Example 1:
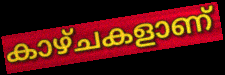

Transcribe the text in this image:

കാഴ്ചകളാണ്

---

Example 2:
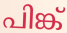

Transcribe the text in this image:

പിങ്ക്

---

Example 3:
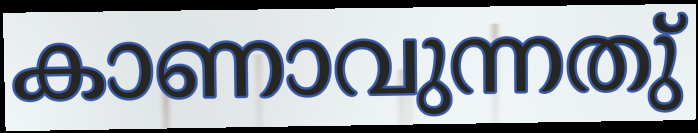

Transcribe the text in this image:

കാണാവുന്നതു്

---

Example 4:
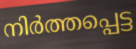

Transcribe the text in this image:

നിർത്തപ്പെട്ട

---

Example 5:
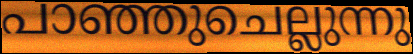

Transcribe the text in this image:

പാഞ്ഞുചെല്ലുന്നു